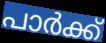
പാർക്ക്